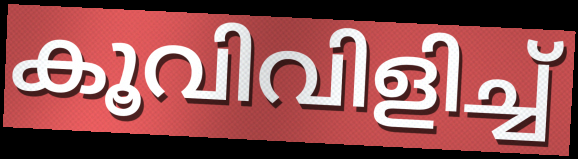
കൂവിവിളിച്ച്